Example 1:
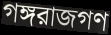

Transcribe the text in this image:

গঙ্গরাজগণ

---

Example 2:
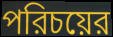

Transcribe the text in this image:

পরিচয়ের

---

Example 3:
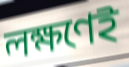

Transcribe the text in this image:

লক্ষণেই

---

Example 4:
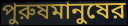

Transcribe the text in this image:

পুরুষমানুষের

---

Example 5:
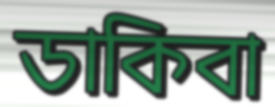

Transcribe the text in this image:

ডাকিবা